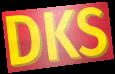
DKS